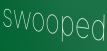
swooped